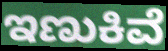
ಇಣುಕಿವೆ